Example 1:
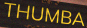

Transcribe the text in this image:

THUMBA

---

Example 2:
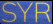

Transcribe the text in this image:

SYR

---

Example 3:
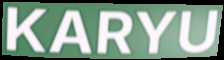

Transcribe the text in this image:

KARYU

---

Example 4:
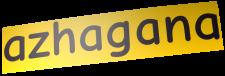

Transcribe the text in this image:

azhagana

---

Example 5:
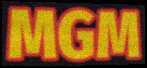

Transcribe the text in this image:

MGM